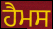
ਹੈਮਸ